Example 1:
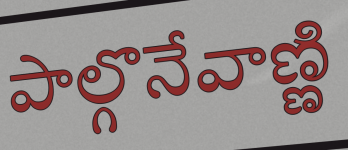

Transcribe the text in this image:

పాల్గొనేవాణ్ణి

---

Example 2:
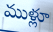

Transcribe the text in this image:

ముళ్లూ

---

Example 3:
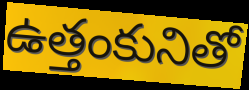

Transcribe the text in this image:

ఉత్తంకునితో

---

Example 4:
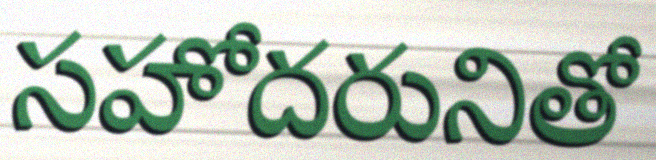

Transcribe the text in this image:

సహోదరునితో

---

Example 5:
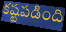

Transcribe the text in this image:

కష్టపడింది